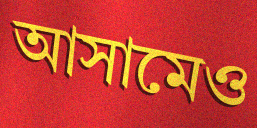
আসামেও